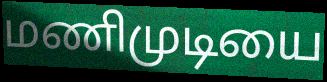
மணிமுடியை